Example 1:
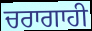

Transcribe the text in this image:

ਚਰਾਗਾਹੀ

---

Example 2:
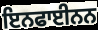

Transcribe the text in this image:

ਇਨਫਾਈਨਨ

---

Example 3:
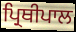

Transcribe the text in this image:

ਪ੍ਰਿਥੀਪਾਲ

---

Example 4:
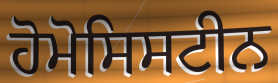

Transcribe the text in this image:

ਹੋਮੋਸਿਸਟੀਨ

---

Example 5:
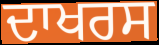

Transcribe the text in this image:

ਦਾਖਰਸ